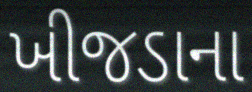
ખીજડાના